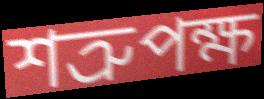
শত্রুপক্ষ